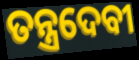
ତନ୍ତ୍ରଦେବୀ